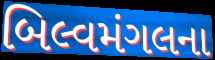
બિલ્વમંગલના